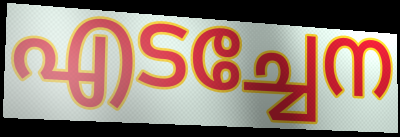
എടച്ചേന